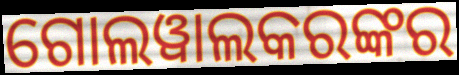
ଗୋଲୱାଲକରଙ୍କର